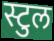
स्टुल